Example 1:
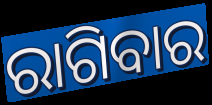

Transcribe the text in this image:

ରାଗିବାର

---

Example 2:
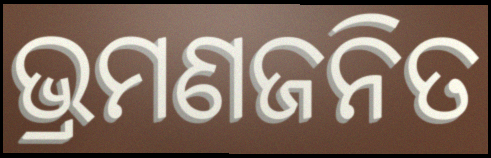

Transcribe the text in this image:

ଭ୍ରମଣଜନିତ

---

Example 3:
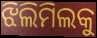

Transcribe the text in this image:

ଝିଲିମିଲକୁ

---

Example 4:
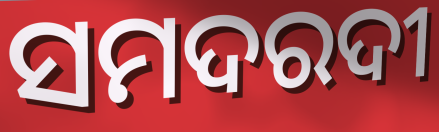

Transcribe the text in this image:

ସମଦରଦୀ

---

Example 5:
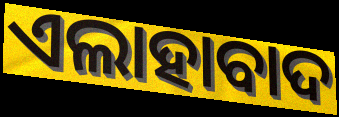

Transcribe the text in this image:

ଏଲାହାବାଦ